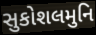
સુકોશલમુનિ